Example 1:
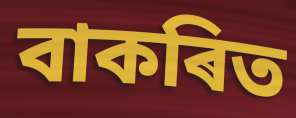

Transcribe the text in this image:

বাকৰিত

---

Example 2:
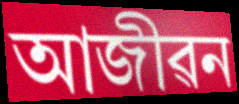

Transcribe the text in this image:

আজীৱন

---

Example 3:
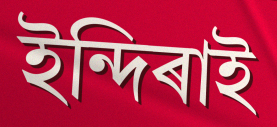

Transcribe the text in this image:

ইন্দিৰাই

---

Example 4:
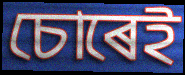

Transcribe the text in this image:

চোৰেই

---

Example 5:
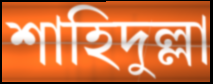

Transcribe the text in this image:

শাহিদুল্লা